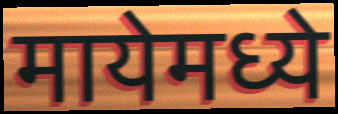
मायेमध्ये